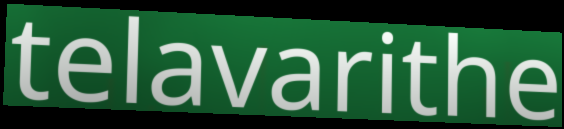
telavarithe